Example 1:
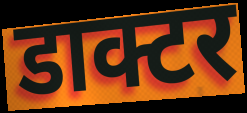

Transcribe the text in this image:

डाक्टर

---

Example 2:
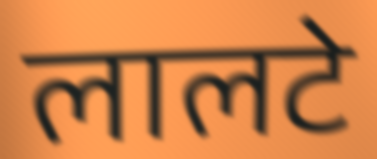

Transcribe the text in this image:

लालटे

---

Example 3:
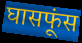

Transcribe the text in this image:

घासफूंस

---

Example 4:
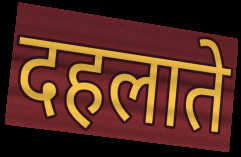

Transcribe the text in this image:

दहलाते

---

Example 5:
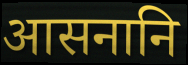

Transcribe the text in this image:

आसनानि